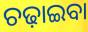
ଚଢ଼ାଇବା